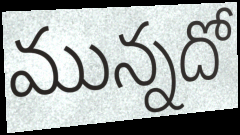
మున్నదో